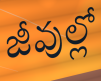
జీవుల్లో